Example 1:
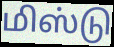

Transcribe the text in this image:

மிஸ்டு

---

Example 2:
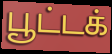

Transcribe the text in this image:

பூட்டக்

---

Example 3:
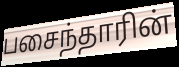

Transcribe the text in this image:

பசைந்தாரின்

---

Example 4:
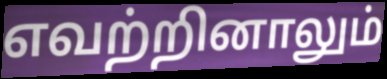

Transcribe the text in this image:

எவற்றினாலும்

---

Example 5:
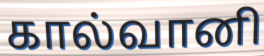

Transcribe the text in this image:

கால்வானி